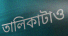
তালিকাটাও